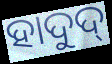
ହାଦୁଦ୍